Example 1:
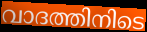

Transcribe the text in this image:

വാദത്തിനിടെ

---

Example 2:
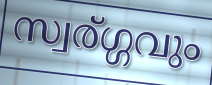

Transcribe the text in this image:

സ്വര്ഗ്ഗവും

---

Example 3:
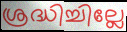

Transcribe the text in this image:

ശ്രദ്ധിച്ചില്ലേ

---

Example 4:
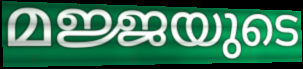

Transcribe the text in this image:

മജ്ജയുടെ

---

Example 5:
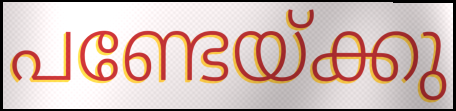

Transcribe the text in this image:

പണ്ടേയ്ക്കു